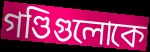
গণ্ডিগুলোকে